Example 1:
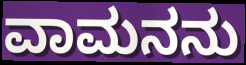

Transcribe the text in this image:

ವಾಮನನು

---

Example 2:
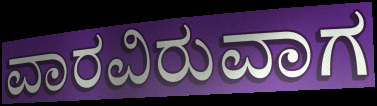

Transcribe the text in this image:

ವಾರವಿರುವಾಗ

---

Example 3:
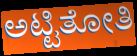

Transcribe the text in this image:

ಅಟ್ಟಿತೋತಿ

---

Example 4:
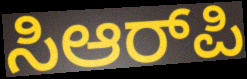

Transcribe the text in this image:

ಸಿಆರ್‌ಪಿ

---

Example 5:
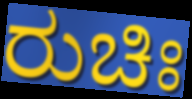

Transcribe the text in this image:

ರುಚಿಃ